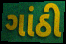
ગાંઠી